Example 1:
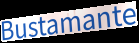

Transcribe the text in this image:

Bustamante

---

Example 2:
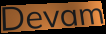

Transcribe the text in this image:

Devam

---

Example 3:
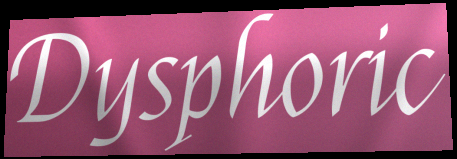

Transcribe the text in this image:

Dysphoric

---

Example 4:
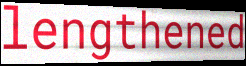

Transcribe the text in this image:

lengthened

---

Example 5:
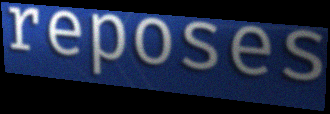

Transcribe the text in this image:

reposes